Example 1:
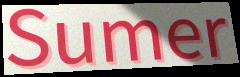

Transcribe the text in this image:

Sumer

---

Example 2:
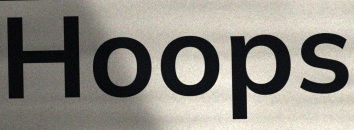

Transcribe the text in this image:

Hoops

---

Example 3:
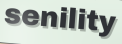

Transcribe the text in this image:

senility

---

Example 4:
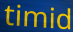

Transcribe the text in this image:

timid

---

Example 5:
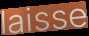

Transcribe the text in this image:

laisse